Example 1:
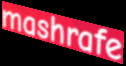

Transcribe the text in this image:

mashrafe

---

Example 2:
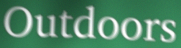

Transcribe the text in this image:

Outdoors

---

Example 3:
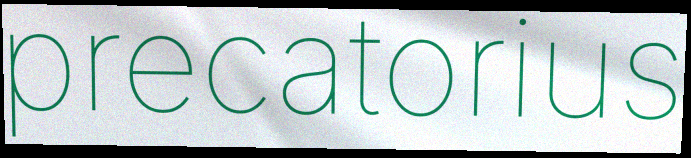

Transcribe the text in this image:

precatorius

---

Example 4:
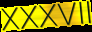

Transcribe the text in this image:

XXXVII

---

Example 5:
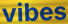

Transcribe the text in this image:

vibes